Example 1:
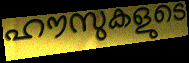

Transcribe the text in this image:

ഹൗസുകളുടെ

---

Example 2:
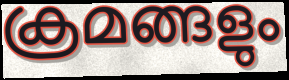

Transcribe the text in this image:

ക്രമങ്ങളും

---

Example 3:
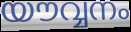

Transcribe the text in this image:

യൗവ്വനം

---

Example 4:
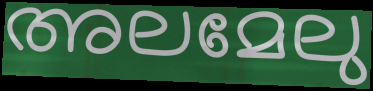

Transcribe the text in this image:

അലമേലു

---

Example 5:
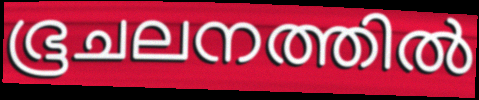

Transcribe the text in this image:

ഭൂചലനത്തിൽ